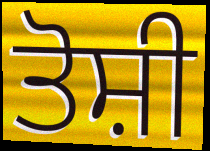
ਤੋਸ਼ੀ